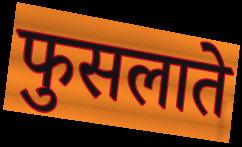
फुसलाते